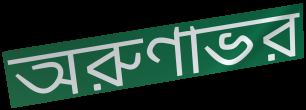
অরুণাভর